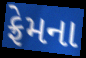
ફ્રેમના